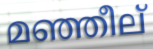
മഞ്ഞീല്